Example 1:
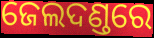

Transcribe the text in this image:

ଜେଲଦଣ୍ଡରେ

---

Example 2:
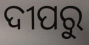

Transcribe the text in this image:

ଦୀପରୁ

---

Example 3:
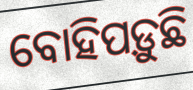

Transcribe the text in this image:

ବୋହିପଡ଼ୁଛି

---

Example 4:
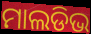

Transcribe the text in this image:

ମାଲଡିଭ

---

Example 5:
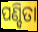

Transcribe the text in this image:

ପଣ୍ଡିତା